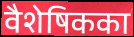
वैशेषिकका